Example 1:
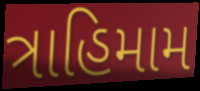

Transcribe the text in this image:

ત્રાહિમામ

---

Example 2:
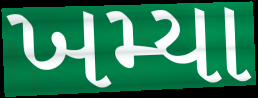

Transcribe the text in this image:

ખમ્યા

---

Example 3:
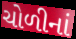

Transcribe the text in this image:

ચોળીનાં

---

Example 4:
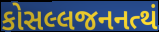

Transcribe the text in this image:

કોસલ્લજનનત્થં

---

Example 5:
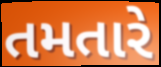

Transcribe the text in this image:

તમતારે